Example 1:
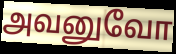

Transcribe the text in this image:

அவனுவோ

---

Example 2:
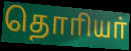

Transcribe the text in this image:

தொரியர்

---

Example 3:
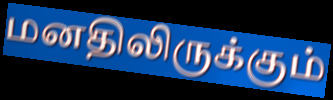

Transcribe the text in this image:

மனதிலிருக்கும்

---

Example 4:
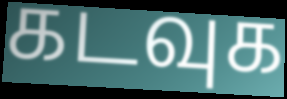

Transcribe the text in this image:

கடவுக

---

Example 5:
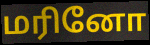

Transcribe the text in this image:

மரினோ